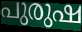
പുരുഷ